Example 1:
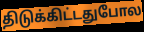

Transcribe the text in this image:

திடுக்கிட்டதுபோல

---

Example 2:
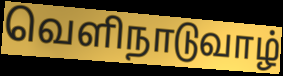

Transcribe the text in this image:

வெளிநாடுவாழ்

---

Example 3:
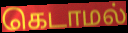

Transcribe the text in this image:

கெடாமல்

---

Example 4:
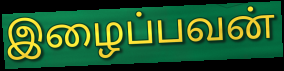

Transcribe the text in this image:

இழைப்பவன்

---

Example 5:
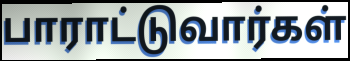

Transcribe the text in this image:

பாராட்டுவார்கள்